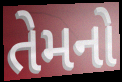
તેમનો